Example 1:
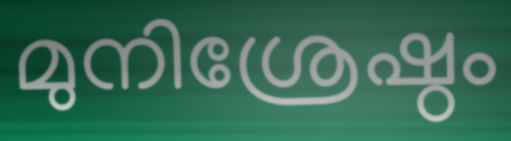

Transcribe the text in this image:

മുനിശ്രേഷ്ഠം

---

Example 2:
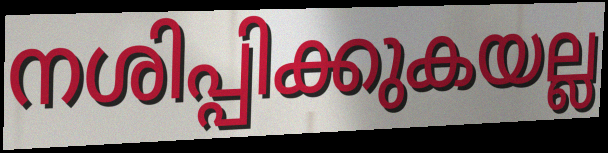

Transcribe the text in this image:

നശിപ്പിക്കുകയല്ല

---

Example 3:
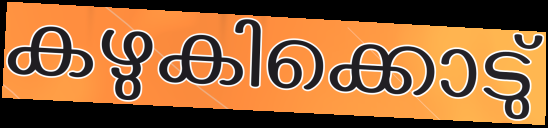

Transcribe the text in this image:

കഴുകിക്കൊടു്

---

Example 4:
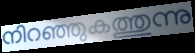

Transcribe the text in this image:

നിറഞ്ഞുകത്തുന്നു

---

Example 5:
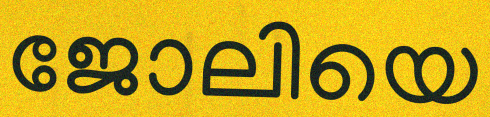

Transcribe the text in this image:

ജോലിയെ